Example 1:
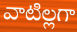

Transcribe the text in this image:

వాటిల్లగా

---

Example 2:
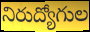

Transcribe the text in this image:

నిరుద్యోగుల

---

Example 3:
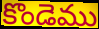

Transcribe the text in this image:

కొండెము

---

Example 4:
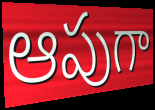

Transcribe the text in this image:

ఆపుగా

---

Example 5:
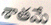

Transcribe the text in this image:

శాతమే